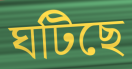
ঘটিছে